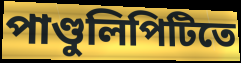
পাণ্ডুলিপিটিতে